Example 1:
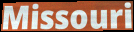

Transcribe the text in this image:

Missouri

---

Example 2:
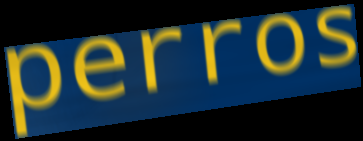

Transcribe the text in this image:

perros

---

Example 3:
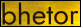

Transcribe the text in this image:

bhetor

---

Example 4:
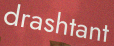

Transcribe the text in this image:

drashtant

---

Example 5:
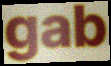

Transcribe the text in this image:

gab